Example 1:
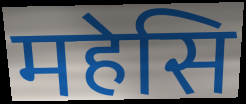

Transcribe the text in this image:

महेसि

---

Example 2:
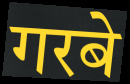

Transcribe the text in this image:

गरबे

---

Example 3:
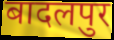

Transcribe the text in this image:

बादलपुर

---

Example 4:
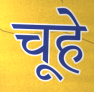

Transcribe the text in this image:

चूहे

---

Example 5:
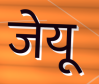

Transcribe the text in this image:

जेयू